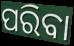
ପରିବା